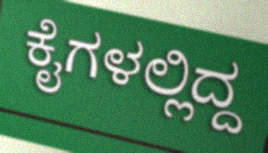
ಕೈಗಳಲ್ಲಿದ್ದ